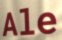
Ale